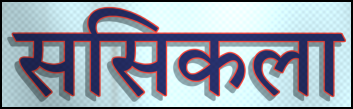
ससिकला